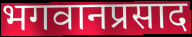
भगवानप्रसाद